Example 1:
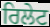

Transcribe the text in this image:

ਰਿਲੇਟ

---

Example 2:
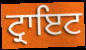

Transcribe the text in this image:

ਟ੍ਰਾਇਟ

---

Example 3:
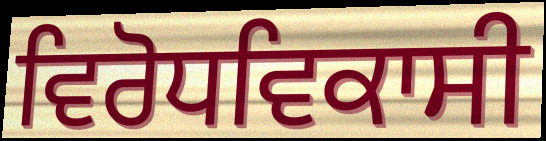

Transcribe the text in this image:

ਵਿਰੋਧਵਿਕਾਸੀ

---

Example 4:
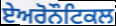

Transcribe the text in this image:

ਏਅਰੋਨੌਟਿਕਲ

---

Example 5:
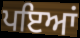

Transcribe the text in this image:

ਪਇਆਂ